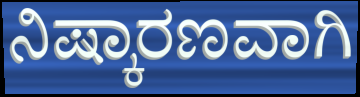
ನಿಷ್ಕಾರಣವಾಗಿ